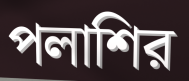
পলাশির